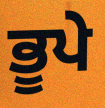
ਭੂਪੇ